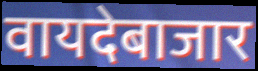
वायदेबाजार